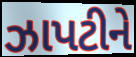
ઝાપટીને